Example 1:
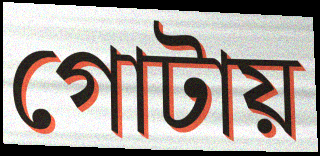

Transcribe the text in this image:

গোটায়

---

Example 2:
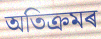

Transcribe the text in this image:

অতিক্ৰমৰ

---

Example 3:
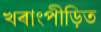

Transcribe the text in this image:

খৰাংপীড়িত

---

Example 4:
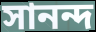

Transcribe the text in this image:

সানন্দ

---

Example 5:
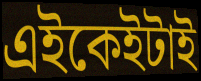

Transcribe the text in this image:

এইকেইটাই